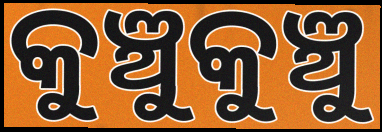
କୁଞ୍ଚୁକୁଞ୍ଚୁ